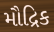
મૌદ્રિક